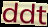
ddt